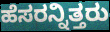
ಹೆಸರನ್ನಿತ್ತರು